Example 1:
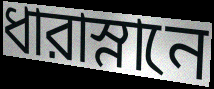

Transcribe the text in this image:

ধারাস্নানে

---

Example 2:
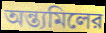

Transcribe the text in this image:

অন্ত্যমিলের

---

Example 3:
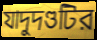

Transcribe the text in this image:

যাদুদণ্ডটির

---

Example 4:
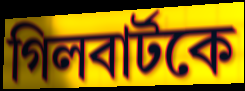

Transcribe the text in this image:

গিলবার্টকে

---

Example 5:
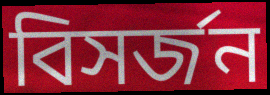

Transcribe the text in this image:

বিসর্জন